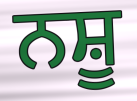
ਨਸ਼ੂ